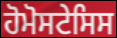
ਹੋਮੋਸਟੇਸਿਸ